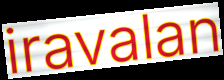
iravalan